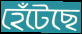
হেঁটেছে